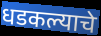
धडकल्याचे